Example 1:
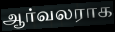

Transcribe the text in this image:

ஆர்வலராக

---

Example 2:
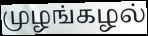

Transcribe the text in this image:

முழங்கழல்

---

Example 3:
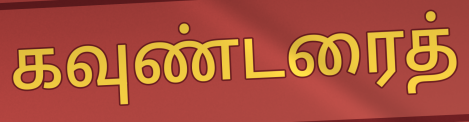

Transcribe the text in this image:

கவுண்டரைத்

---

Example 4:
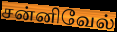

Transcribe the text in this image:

சன்னிவேல்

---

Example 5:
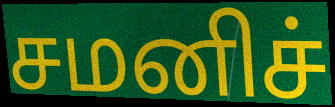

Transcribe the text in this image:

சமனிச்